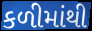
કળીમાંથી